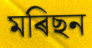
মৰিছন